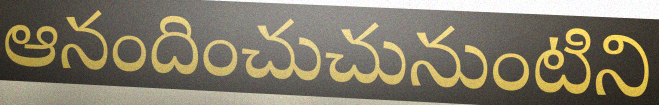
ఆనందించుచునుంటిని